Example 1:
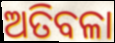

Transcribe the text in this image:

ଅତିବଳା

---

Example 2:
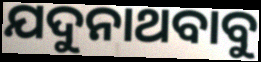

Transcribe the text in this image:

ଯଦୁନାଥବାବୁ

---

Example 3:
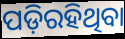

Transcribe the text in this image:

ପଡ଼ିରହିଥିବା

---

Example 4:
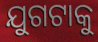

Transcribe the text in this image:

ଯୁଗଟାକୁ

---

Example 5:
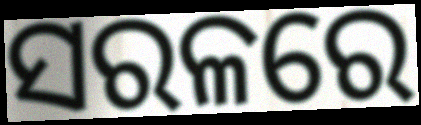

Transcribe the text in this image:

ସରଳରେ